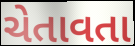
ચેતાવતા